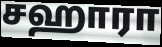
சஹாரா